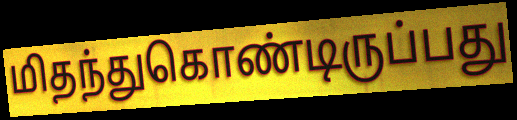
மிதந்துகொண்டிருப்பது